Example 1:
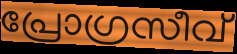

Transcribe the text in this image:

പ്രോഗ്രസീവ്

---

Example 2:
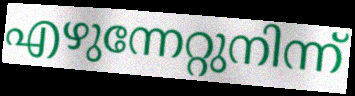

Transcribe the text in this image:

എഴുന്നേറ്റുനിന്ന്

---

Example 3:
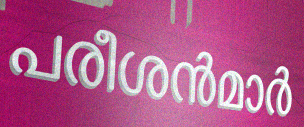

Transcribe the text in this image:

പരീശൻമാർ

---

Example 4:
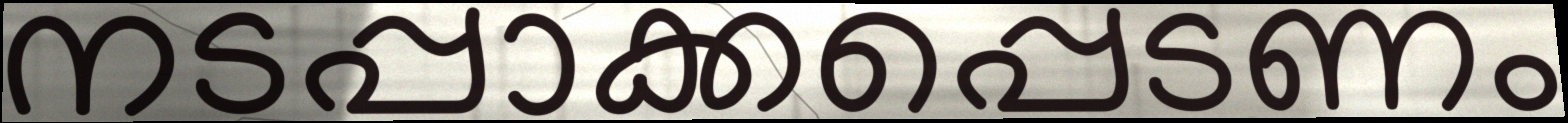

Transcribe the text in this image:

നടപ്പാക്കപ്പെടണം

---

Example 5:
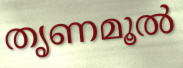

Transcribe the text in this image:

തൃണമൂൽ